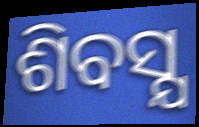
ଶିବସ୍ଯ